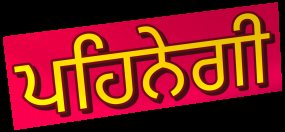
ਪਹਿਨੇਗੀ